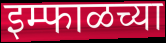
इम्फाळच्या